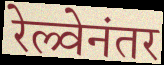
रेल्वेनंतर